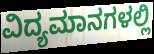
ವಿದ್ಯಮಾನಗಳಲ್ಲಿ